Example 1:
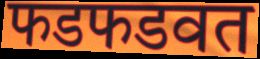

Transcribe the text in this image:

फडफडवत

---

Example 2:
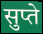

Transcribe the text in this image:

सुप्ते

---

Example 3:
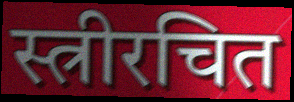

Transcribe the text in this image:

स्त्रीरचित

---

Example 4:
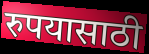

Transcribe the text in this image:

रुपयासाठी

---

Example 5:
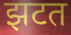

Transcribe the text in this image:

झटत